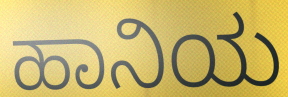
ಹಾನಿಯ